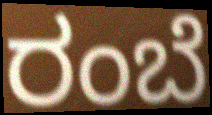
ರಂಬೆ